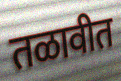
तळावीत